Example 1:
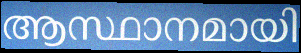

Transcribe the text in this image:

ആസ്ഥാനമായി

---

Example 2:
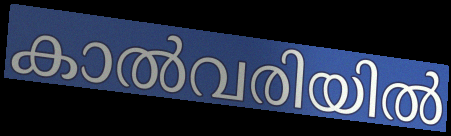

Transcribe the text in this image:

കാൽവരിയിൽ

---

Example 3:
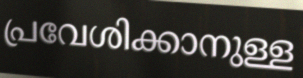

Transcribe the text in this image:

പ്രവേശിക്കാനുള്ള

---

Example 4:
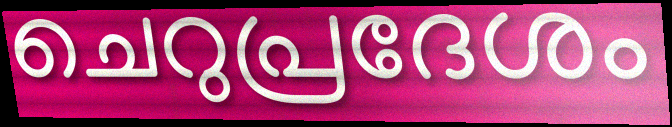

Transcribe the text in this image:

ചെറുപ്രദേശം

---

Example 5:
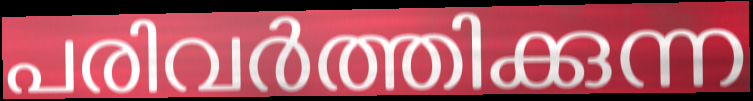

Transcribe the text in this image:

പരിവർത്തിക്കുന്ന